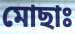
মোছাঃ